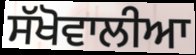
ਸੱਖੋਵਾਲੀਆ